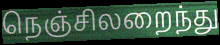
நெஞ்சிலறைந்து